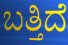
ಬತ್ತಿದೆ